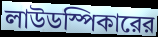
লাউডস্পিকারের